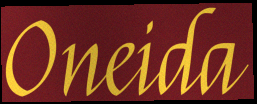
Oneida